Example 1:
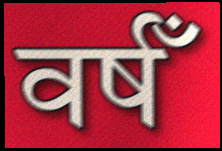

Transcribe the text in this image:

वर्षँ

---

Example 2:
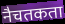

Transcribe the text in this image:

नैचतकता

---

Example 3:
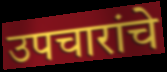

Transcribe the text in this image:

उपचारांचे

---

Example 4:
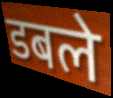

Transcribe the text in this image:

डबले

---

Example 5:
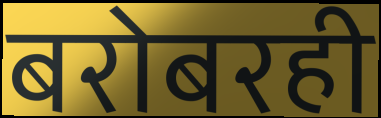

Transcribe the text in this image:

बरोबरही